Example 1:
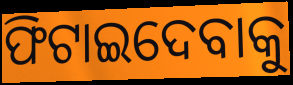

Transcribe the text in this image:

ଫିଟାଇଦେବାକୁ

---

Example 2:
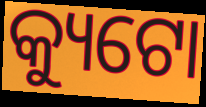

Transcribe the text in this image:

କ୍ୟୁଟୋ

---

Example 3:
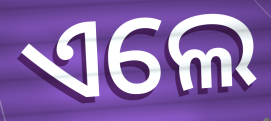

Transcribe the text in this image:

ଏଲେ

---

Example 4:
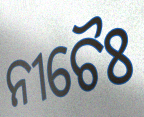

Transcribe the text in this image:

ନୀଚୈଃ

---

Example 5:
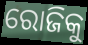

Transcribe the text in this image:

ରୋଜିକୁ